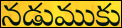
నడుముకు